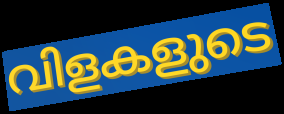
വിളകളുടെ